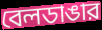
বেলডাঙার